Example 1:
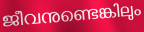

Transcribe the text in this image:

ജീവനുണ്ടെങ്കിലും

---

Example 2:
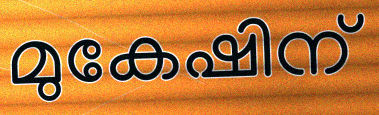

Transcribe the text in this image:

മുകേഷിന്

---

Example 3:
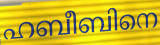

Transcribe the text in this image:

ഹബീബിനെ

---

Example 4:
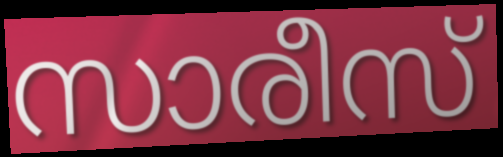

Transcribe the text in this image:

സാരീസ്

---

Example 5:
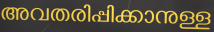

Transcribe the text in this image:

അവതരിപ്പിക്കാനുള്ള